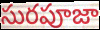
సురపూజా